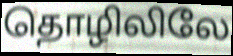
தொழிலிலே